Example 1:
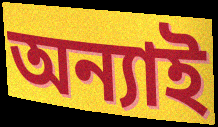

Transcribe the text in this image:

অন্যাই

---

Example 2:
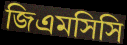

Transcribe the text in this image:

জিএমসিসি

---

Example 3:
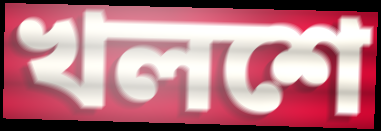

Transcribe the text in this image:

খলশে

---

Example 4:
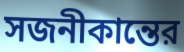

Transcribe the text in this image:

সজনীকান্তের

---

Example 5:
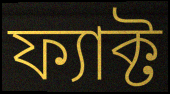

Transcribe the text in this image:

ফ্যাক্ট